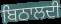
ਬਿਠਾਲਦੀ